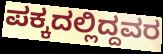
ಪಕ್ಕದಲ್ಲಿದ್ದವರ